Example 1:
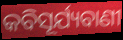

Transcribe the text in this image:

କବିସୂର୍ଯ୍ୟବାଣୀ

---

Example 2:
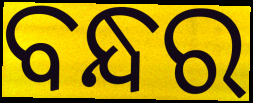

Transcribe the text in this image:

ବନ୍ଧର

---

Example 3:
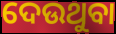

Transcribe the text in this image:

ଦେଉଥୁବା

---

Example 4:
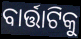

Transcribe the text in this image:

ବାର୍ତ୍ତାଟିକୁ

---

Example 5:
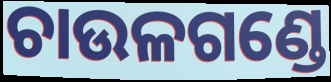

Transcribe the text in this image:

ଚାଉଳଗଣ୍ଡେ